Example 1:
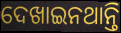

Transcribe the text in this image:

ଦେଖାଇନଥାନ୍ତି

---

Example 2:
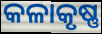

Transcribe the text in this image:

କଳାକୃଷ୍ଣ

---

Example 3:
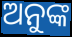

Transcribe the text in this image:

ଅନୁଙ୍କ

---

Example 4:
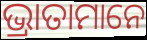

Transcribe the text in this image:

ଭ୍ରାତାମାନେ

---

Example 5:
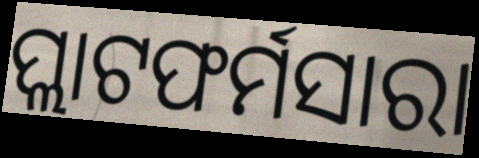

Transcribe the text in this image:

ପ୍ଲାଟଫର୍ମସାରା